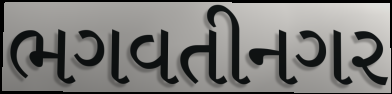
ભગવતીનગર